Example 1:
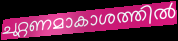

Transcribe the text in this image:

ചുറ്റണമാകാശത്തിൽ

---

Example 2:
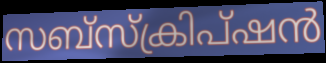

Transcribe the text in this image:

സബ്സ്ക്രിപ്ഷൻ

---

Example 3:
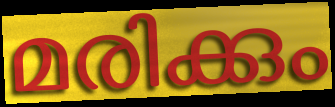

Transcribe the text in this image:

മരിക്കും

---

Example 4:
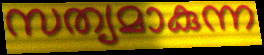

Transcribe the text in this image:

സത്യമാകുന്ന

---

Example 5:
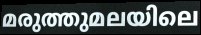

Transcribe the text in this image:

മരുത്തുമലയിലെ